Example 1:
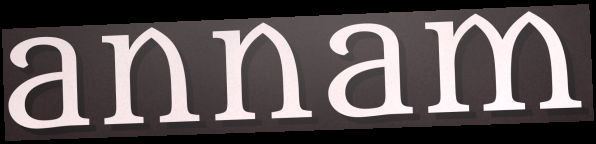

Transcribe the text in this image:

annam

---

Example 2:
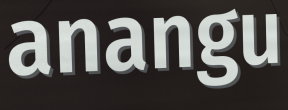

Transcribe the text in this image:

anangu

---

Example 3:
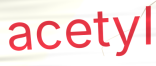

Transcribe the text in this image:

acetyl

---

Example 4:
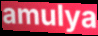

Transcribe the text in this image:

amulya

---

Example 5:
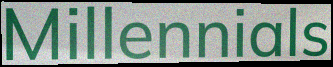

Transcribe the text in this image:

Millennials